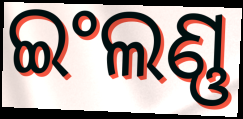
ଇଂଲଣ୍ଣ